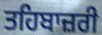
ਤਹਿਬਾਜ਼ਰੀ